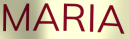
MARIA